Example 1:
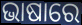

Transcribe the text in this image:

ଭାଷାରେ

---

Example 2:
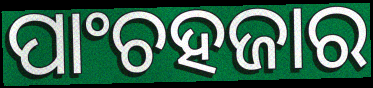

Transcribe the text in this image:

ପାଂଚହଜାର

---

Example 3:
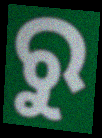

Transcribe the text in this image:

ରୁ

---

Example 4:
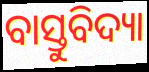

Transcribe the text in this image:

ବାସ୍ତୁବିଦ୍ୟା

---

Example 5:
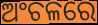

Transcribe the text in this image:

ଅଂଚଳରେ